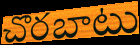
చొరబాటు